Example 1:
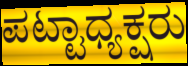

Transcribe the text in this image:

ಪಟ್ಟಾಧ್ಯಕ್ಷರು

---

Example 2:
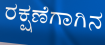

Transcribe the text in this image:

ರಕ್ಷಣೆಗಾಗಿನ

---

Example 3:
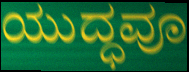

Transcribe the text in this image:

ಯುದ್ಧವೂ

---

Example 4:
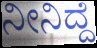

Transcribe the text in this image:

ನೀನಿದ್ದೆ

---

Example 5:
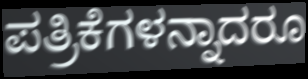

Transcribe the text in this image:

ಪತ್ರಿಕೆಗಳನ್ನಾದರೂ